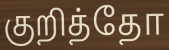
குறித்தோ